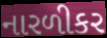
નારળીકર